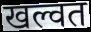
खल्वत